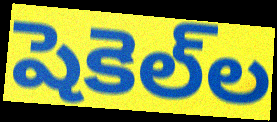
షెకెల్‌ల